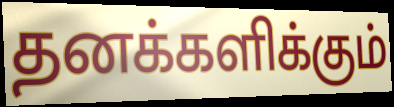
தனக்களிக்கும்